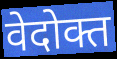
वेदोक्त